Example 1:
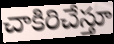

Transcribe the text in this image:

చాకిరిచేస్తూ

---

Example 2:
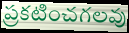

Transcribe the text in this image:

ప్రకటించగలవు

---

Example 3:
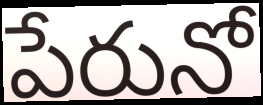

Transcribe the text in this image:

పేరునో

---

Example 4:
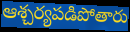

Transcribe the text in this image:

ఆశ్చర్యపడిపోతారు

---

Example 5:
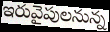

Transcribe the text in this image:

ఇరువైపులనున్న